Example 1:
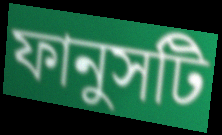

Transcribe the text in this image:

ফানুসটি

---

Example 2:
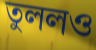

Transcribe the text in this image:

তুললও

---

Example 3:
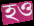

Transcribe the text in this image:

হও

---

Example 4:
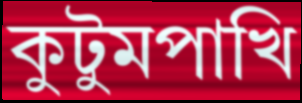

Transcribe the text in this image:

কুটুমপাখি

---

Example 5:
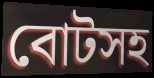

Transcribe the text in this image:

বোটসহ